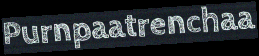
Purnpaatrenchaa